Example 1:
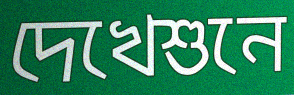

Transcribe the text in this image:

দেখেশুনে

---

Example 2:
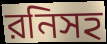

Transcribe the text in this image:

রনিসহ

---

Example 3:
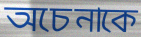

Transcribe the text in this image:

অচেনাকে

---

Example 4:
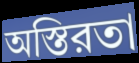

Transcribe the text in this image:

অস্তিরতা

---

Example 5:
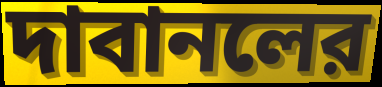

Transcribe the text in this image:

দাবানলের